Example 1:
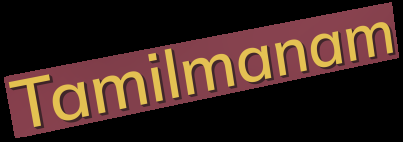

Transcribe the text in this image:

Tamilmanam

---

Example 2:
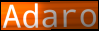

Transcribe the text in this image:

Adaro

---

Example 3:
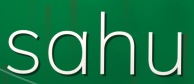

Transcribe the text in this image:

sahu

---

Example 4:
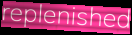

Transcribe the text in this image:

replenished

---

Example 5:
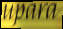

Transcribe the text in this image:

upara